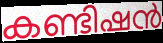
കണ്ടിഷൻ